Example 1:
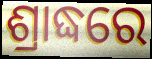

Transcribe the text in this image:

ଶ୍ରାଦ୍ଧରେ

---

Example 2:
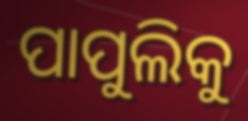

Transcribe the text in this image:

ପାପୁଲିକୁ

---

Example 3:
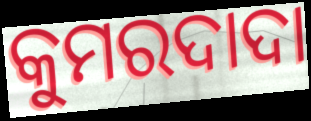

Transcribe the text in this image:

କୁମରଦାଦା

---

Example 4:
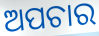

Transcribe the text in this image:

ଅପଚାର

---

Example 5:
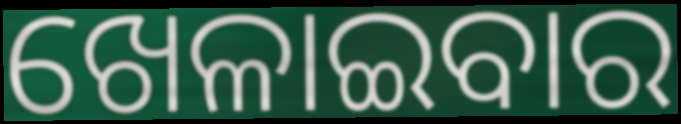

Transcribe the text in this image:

ଖେଳାଇବାର